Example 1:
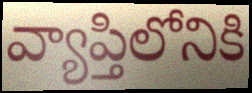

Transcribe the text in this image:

వ్యాప్తిలోనికి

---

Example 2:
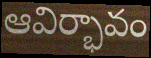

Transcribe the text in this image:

ఆవిర్భావం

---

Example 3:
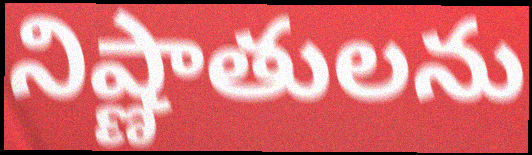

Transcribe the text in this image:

నిష్ణాతులను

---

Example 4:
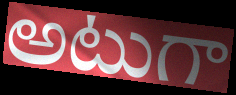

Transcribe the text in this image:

అటుగా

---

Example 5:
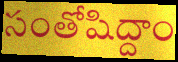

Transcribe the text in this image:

సంతోషిద్దాం